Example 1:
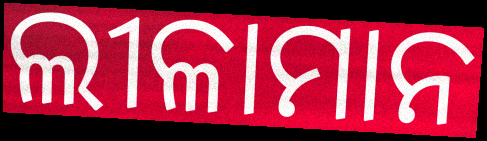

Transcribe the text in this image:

ଲୀଳାମାନ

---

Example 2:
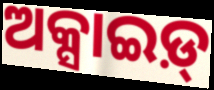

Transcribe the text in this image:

ଅକ୍ସାଇଡ଼୍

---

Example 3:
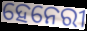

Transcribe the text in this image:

ହେନେରୀ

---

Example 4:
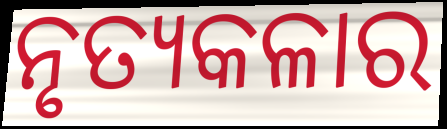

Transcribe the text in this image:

ନୃତ୍ୟକଳାର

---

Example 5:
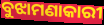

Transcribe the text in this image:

ବୁଝାମଣାକାରୀ